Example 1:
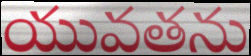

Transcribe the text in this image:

యువతను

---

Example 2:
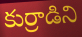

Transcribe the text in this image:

కుర్రాడిని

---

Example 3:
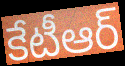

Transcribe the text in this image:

కేటీఆర్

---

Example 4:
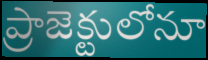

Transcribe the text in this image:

ప్రాజెక్టులోనూ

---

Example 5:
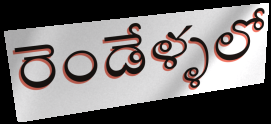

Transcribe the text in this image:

రెండేళ్ళలో